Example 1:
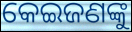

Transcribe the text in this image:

କେଇଜଣଙ୍କୁ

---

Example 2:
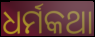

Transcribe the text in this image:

ଧର୍ମକଥା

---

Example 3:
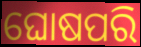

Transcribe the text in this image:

ଘୋଷପରି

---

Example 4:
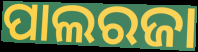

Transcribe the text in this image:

ପାଲରଜା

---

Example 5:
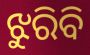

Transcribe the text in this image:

ଝୁରିବି